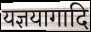
यज्ञयागादि